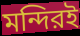
মন্দিরই